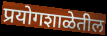
प्रयोगशाळेतील